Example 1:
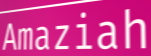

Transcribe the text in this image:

Amaziah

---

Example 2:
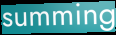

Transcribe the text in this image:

summing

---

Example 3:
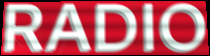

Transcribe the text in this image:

RADIO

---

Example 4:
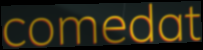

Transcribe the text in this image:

comedat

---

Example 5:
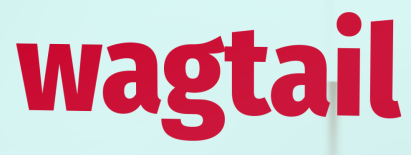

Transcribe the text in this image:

wagtail